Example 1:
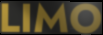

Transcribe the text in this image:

LIMO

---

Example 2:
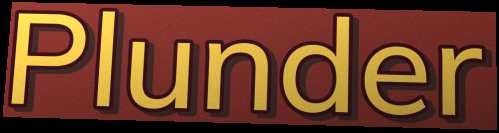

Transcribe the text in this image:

Plunder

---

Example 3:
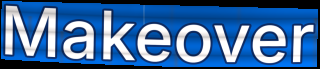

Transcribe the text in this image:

Makeover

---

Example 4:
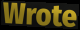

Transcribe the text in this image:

Wrote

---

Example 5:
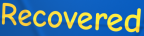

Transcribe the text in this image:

Recovered